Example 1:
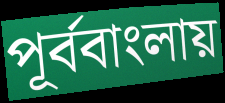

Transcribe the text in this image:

পূর্ববাংলায়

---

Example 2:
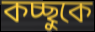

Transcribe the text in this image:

কচ্ছুকে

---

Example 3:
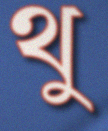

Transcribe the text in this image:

থু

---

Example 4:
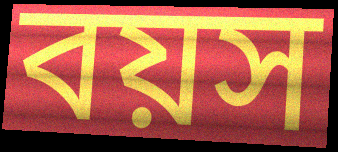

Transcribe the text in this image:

বয়স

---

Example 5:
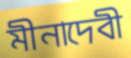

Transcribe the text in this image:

মীনাদেবী